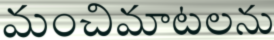
మంచిమాటలను